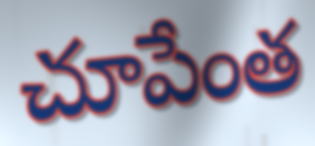
చూపేంత